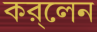
কর্‌লেন